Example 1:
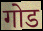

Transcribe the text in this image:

गोड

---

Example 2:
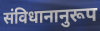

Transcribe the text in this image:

संविधानानुरूप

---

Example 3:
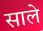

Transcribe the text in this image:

साले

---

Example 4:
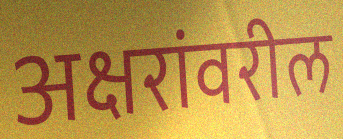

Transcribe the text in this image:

अक्षरांवरील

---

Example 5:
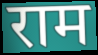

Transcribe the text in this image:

राम